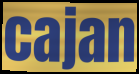
cajan